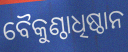
ବୈକୁଣ୍ଠାଧିଷ୍ଠାନ